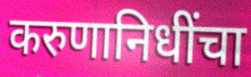
करुणानिधींचा